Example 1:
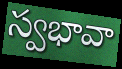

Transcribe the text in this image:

స్వభావా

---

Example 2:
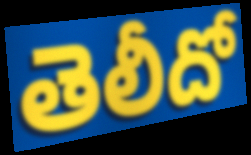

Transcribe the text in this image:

తెలీదో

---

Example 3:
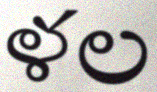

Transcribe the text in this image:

ళల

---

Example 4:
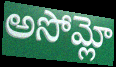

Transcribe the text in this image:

అసోమ్లో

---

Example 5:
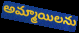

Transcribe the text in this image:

అమ్మాయిలను